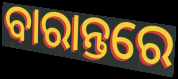
ବାରାନ୍ତରେ